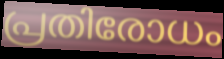
പ്രതിരോധം